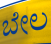
ಬೇಲ